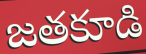
జతకూడి